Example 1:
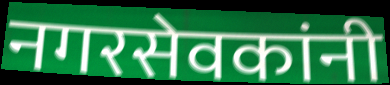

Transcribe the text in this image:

नगरसेवकांनी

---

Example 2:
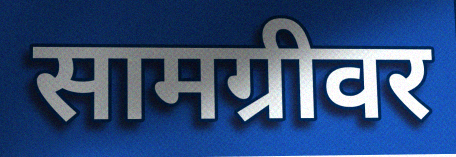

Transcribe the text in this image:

सामग्रीवर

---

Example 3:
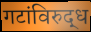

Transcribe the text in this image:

गटांविरुद्ध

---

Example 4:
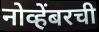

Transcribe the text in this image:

नोव्हेंबरची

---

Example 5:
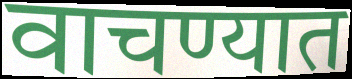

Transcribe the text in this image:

वाचण्यात